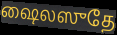
ஷைலஸுதே